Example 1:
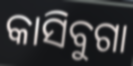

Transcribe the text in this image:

କାସିବୁଗା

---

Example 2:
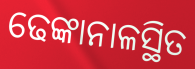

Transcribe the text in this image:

ଢେଙ୍କାନାଳସ୍ଥିତ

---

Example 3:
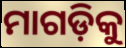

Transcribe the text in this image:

ମାଗଡ଼ିକୁ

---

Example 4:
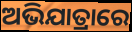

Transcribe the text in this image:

ଅଭିଯାତ୍ରାରେ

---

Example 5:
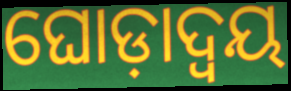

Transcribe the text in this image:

ଘୋଡ଼ାଦ୍ୱୟ